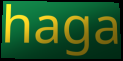
haga